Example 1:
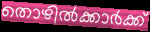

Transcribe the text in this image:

തൊഴിൽക്കാർക്ക്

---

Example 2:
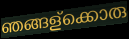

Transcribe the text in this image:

ഞങ്ങള്ക്കൊരു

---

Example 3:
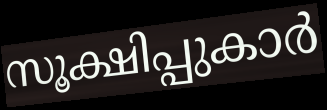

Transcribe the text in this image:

സൂക്ഷിപ്പുകാർ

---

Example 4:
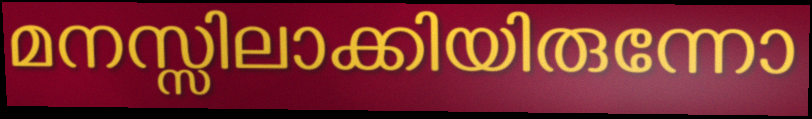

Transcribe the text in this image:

മനസ്സിലാക്കിയിരുന്നോ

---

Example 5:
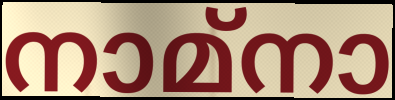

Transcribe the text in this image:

നാമ്നാ